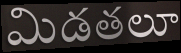
మిడతలూ